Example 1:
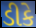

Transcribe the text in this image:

ડીકે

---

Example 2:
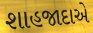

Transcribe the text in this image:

શાહજાદાએ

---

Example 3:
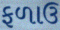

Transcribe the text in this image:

ફળાઉ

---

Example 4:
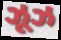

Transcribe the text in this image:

ઝૂઝ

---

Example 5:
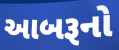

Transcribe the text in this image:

આબરૂનો